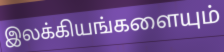
இலக்கியங்களையும்